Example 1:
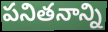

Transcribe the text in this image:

పనితనాన్ని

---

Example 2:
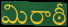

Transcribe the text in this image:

మిరాఠీ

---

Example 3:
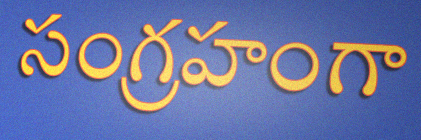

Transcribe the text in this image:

సంగ్రహంగా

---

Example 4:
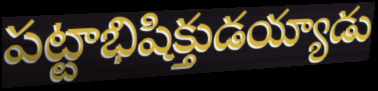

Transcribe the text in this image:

పట్టాభిషిక్తుడయ్యాడు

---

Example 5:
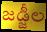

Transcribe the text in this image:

జడ్జీల